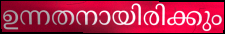
ഉന്നതനായിരിക്കും